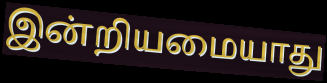
இன்றியமையாது